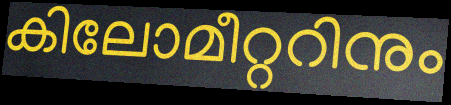
കിലോമീറ്ററിനും